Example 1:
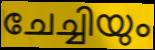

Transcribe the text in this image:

ചേച്ചിയും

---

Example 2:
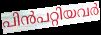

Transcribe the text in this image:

പിൻപറ്റിയവർ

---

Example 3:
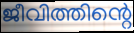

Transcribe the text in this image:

ജീവിത്തിന്റെ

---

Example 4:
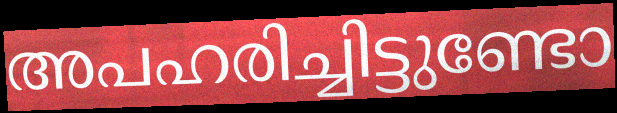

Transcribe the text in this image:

അപഹരിച്ചിട്ടുണ്ടോ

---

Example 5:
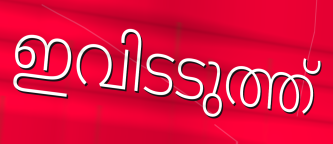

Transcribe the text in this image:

ഇവിടടുത്ത്